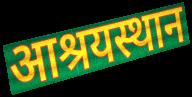
आश्रयस्थान